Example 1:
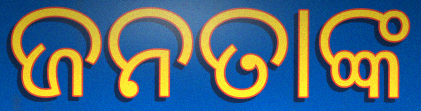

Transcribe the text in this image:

ଜନତାଙ୍କ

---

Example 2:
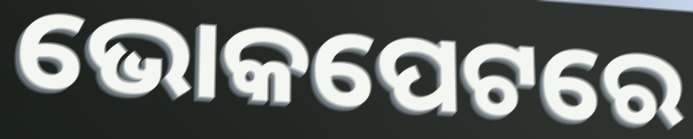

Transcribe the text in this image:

ଭୋକପେଟରେ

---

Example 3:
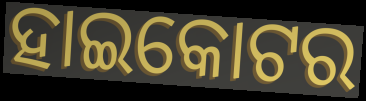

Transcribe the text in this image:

ହାଇକୋଟର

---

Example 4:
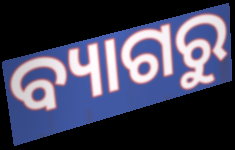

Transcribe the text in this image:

ବ୍ୟାଗରୁ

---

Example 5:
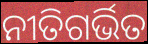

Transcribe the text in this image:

ନୀତିଗର୍ଭିତ